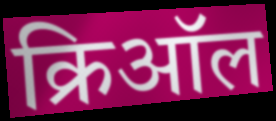
क्रिऑल